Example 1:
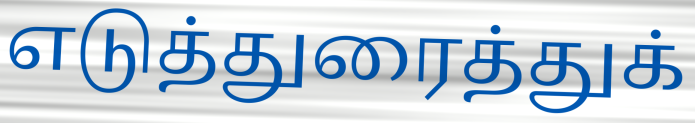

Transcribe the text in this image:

எடுத்துரைத்துக்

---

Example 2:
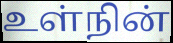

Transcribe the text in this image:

உள்நின்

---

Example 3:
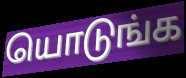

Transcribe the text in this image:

யொடுங்க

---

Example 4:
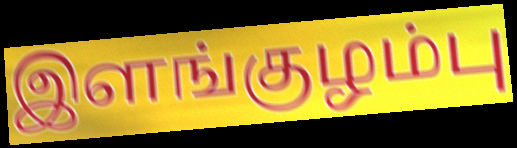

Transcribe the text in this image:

இளங்குழம்பு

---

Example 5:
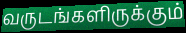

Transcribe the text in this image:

வருடங்களிருக்கும்